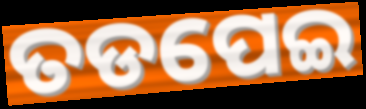
ତଡପେଇ